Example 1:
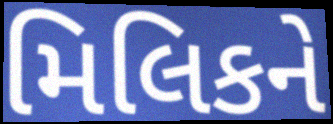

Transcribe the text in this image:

મિલિકને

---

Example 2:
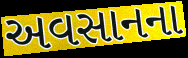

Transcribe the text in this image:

અવસાનના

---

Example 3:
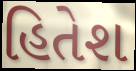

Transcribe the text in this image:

હિતેશ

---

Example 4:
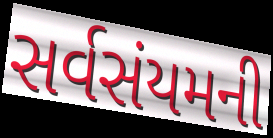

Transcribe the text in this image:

સર્વસંયમની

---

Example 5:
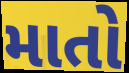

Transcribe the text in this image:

માતો